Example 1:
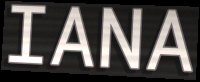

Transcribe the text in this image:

IANA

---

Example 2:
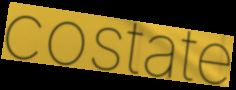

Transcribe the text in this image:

costate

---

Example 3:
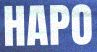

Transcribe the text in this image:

HAPO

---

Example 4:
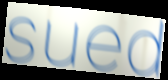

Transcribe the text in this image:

sued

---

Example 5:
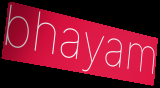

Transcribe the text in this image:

bhayam